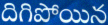
దిగిపోయిన